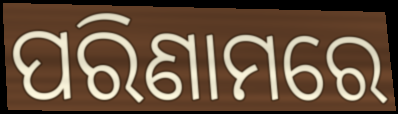
ପରିଣାମରେ